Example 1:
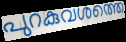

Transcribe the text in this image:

പുറകുവശത്തെ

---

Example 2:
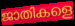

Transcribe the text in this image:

ജാതികളെ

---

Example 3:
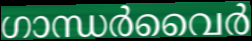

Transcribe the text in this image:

ഗാന്ധർവൈർ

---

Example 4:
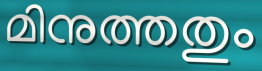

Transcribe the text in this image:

മിനുത്തതും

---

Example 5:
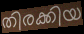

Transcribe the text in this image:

തിരക്കിയ